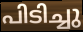
പിടിച്ചു